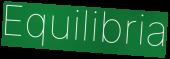
Equilibria